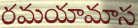
రమయామాస